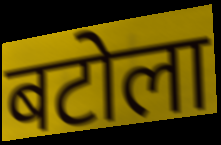
बटोला